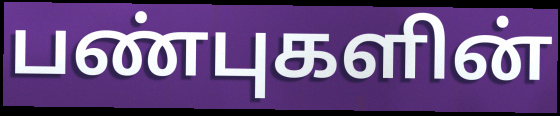
பண்புகளின்